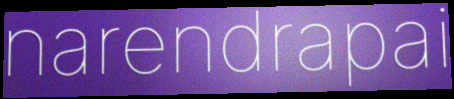
narendrapai